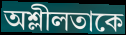
অশ্লীলতাকে